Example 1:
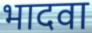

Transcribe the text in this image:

भादवा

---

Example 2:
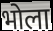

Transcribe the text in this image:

भोला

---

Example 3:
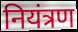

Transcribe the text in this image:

नियंत्रण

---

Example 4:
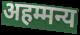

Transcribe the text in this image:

अहम्मन्य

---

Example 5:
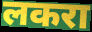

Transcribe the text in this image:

लकरा